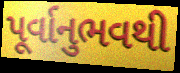
પૂર્વાનુભવથી